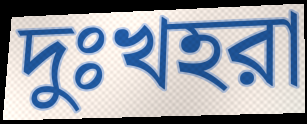
দুঃখহরা